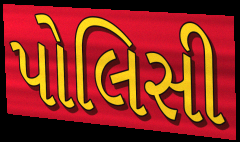
પોલિસી